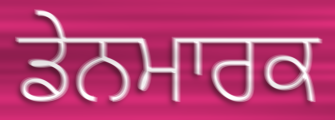
ਡੇਨਮਾਰਕ